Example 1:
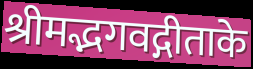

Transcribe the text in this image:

श्रीमद्भगवद्गीताके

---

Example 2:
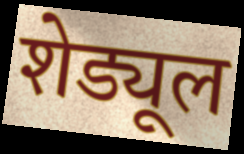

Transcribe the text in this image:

शेड्यूल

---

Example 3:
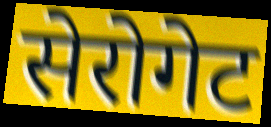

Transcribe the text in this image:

सेरोगेट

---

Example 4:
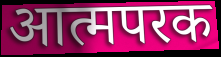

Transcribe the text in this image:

आत्मपरक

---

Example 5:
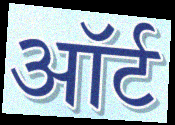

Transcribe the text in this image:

ऑर्ट